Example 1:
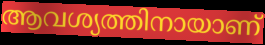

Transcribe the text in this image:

ആവശ്യത്തിനായാണ്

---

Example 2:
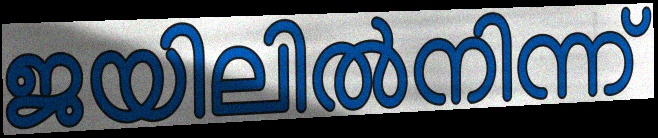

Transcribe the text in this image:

ജയിലിൽനിന്ന്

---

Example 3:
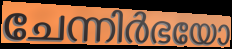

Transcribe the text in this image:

ചേന്നിർഭയോ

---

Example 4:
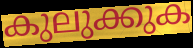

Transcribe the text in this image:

കുലുക്കുക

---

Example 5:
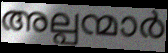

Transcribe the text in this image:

അല്പന്മാർ